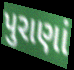
પુરાણાં